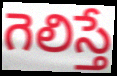
గెలిస్తే